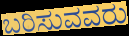
ಬರಿಸುವವರು